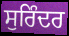
ਸੁਰਿੰਦਰ